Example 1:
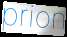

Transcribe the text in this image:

prion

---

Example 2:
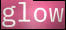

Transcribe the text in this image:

glow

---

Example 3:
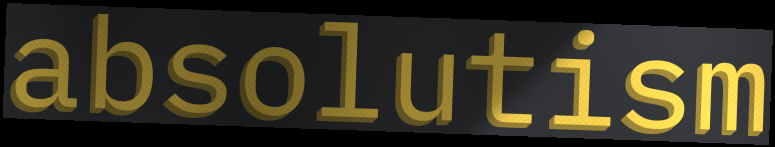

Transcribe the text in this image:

absolutism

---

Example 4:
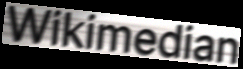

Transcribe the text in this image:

Wikimedian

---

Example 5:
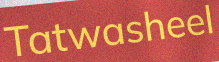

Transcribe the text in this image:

Tatwasheel